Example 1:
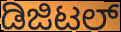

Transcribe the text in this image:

ಡಿಜಿಟಲ್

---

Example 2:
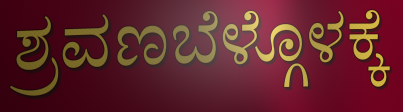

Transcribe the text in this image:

ಶ್ರವಣಬೆಳ್ಗೊಳಕ್ಕೆ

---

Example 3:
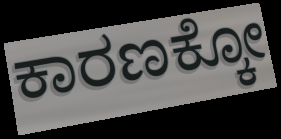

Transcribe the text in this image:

ಕಾರಣಕ್ಕೋ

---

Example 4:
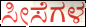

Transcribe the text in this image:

ಸೀಸೆಗಳ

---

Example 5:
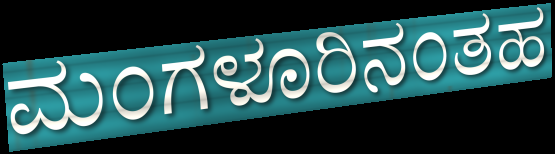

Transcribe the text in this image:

ಮಂಗಳೂರಿನಂತಹ